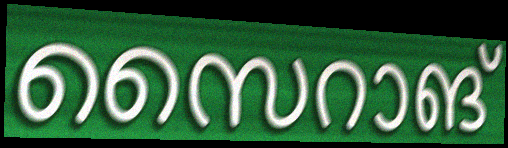
സൈറാങ്